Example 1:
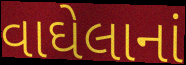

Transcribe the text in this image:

વાઘેલાનાં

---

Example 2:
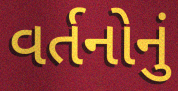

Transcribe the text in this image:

વર્તનોનું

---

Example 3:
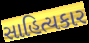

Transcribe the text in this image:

સાહિત્યકાર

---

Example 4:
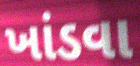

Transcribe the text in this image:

ખાંડવા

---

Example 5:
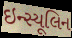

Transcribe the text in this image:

ઇન્સ્યૂલિન